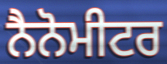
ਨੈਨੋਮੀਟਰ